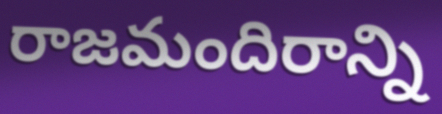
రాజమందిరాన్ని